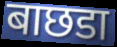
बाछडा